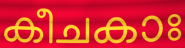
കീചകാഃ